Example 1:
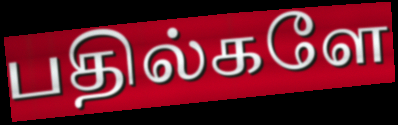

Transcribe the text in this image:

பதில்களே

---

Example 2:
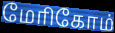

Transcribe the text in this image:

மேரிகோம்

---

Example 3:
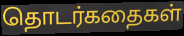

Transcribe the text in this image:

தொடர்கதைகள்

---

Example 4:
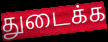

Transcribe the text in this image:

துடைக்க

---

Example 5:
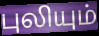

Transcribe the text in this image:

புலியும்